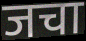
जचा